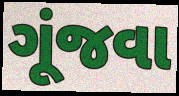
ગૂંજવા